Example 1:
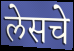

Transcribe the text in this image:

लेसचे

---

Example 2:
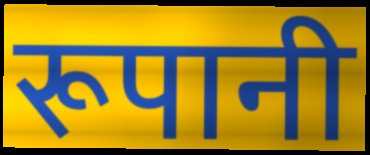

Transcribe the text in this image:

रूपानी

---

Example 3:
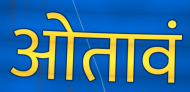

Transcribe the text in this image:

ओतावं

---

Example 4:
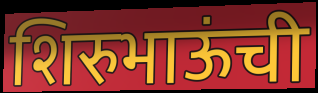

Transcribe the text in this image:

शिरुभाऊंची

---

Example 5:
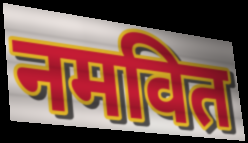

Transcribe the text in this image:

नमवित